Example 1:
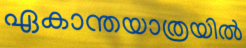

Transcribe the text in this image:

ഏകാന്തയാത്രയിൽ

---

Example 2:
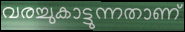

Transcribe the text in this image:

വരച്ചുകാട്ടുന്നതാണ്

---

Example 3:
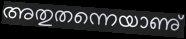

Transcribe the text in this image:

അതുതന്നെയാണു്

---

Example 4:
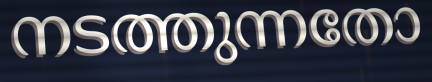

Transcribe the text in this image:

നടത്തുന്നതോ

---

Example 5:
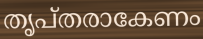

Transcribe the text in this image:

തൃപ്തരാകേണം